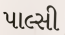
પાલ્સી